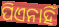
ପିଏନାହିଁ